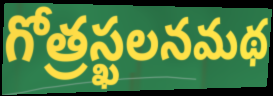
గోత్రస్ఖలనమథ